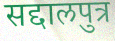
सद्दालपुत्र